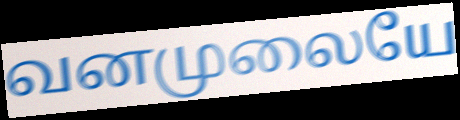
வனமுலையே